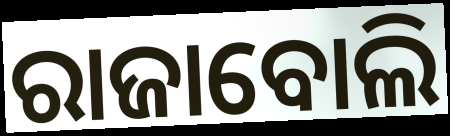
ରାଜାବୋଲି